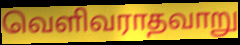
வெளிவராதவாறு